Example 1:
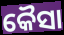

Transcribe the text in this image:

କୈସା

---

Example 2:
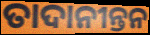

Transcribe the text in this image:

ତାଦାନୀନ୍ତନ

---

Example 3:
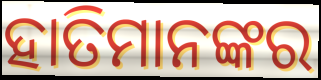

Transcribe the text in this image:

ହାତିମାନଙ୍କର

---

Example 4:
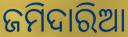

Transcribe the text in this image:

ଜମିଦାରିଆ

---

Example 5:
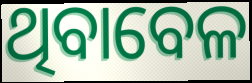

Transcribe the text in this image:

ଥିବାବେଳ